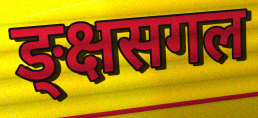
ङ्क्षसगल